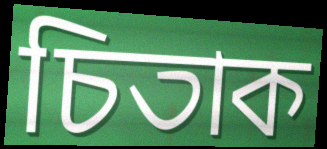
চিতাক